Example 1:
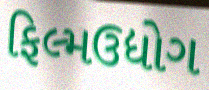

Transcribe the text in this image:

ફિલ્મઉદ્યોગ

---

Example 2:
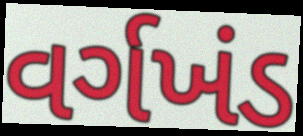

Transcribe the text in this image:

વર્ગખંડ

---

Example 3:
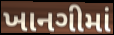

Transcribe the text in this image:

ખાનગીમાં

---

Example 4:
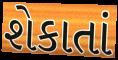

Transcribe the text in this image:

શેકાતાં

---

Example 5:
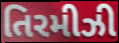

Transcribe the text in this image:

તિરમીઝી